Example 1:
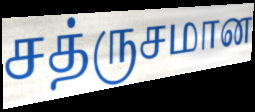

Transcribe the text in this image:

சத்ருசமான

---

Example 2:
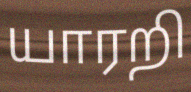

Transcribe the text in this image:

யாரறி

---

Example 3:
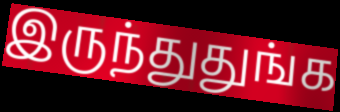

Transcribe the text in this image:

இருந்துதுங்க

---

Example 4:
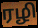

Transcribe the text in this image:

ரழி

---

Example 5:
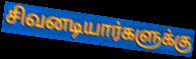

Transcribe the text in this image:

சிவனடியார்களுக்கு